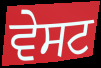
ਵੇਸਟ